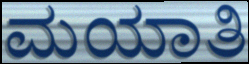
ಮಯಾತಿ